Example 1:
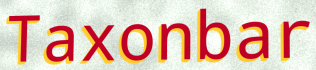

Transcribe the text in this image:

Taxonbar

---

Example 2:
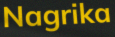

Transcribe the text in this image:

Nagrika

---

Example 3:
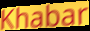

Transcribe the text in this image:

Khabar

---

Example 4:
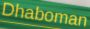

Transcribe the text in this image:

Dhaboman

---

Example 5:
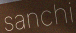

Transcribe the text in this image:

sanchi